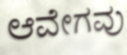
ಆವೇಗವು